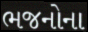
ભજનોના